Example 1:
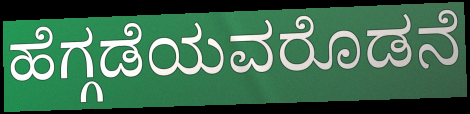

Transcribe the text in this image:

ಹೆಗ್ಗಡೆಯವರೊಡನೆ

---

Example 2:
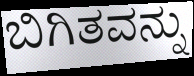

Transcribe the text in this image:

ಬಿಗಿತವನ್ನು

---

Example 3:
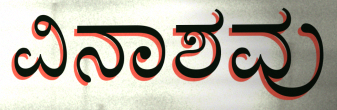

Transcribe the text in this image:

ವಿನಾಶವು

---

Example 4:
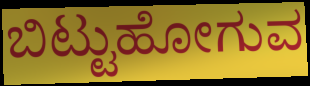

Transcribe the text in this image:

ಬಿಟ್ಟುಹೋಗುವ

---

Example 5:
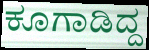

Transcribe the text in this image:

ಕೂಗಾಡಿದ್ದ